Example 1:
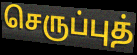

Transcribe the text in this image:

செருப்புத்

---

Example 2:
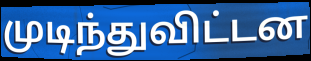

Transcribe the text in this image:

முடிந்துவிட்டன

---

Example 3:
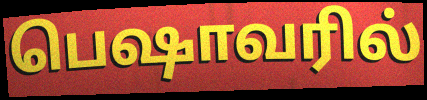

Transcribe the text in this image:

பெஷாவரில்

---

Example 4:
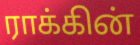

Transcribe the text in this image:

ராக்கின்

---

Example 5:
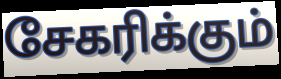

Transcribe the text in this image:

சேகரிக்கும்